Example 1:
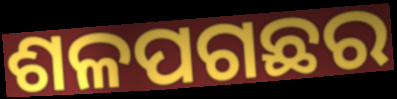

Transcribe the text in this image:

ଶଳପଗଛର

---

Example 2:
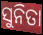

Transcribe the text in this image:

ସୁନିତା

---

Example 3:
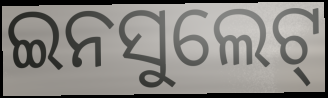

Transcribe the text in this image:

ଇନସୁଲେଟ୍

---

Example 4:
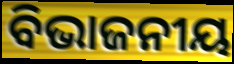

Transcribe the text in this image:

ବିଭାଜନୀୟ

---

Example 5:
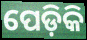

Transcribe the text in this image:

ପେଡ଼ିକି